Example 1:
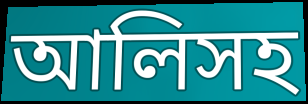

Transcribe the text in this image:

আলিসহ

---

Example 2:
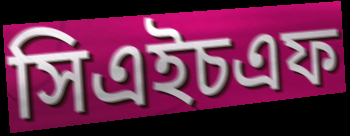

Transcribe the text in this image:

সিএইচএফ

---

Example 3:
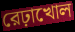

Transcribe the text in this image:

রেঢ়াখোল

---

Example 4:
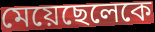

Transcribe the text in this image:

মেয়েছেলেকে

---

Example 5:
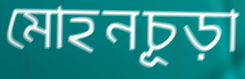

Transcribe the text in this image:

মোহনচূড়া